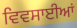
ਵਿਵਸਾਈਆਂ